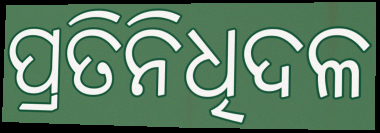
ପ୍ରତିନିଧିଦଳ